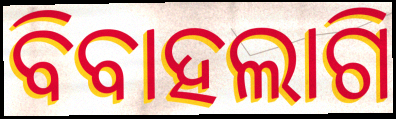
ବିବାହଲାଗି